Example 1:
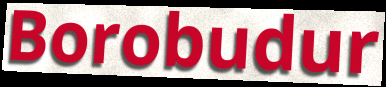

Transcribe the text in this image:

Borobudur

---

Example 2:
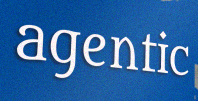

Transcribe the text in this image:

agentic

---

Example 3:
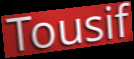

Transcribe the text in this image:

Tousif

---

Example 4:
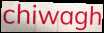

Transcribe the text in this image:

chiwagh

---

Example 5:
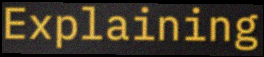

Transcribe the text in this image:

Explaining